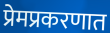
प्रेमप्रकरणात